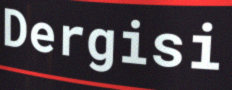
Dergisi